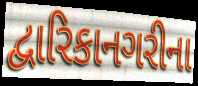
દ્વારિકાનગરીના